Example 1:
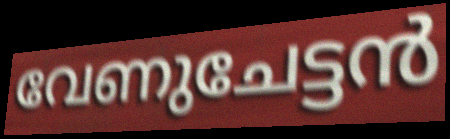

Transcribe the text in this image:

വേണുചേട്ടൻ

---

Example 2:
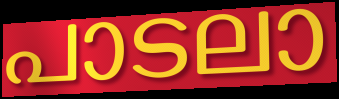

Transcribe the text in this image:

പാടലാ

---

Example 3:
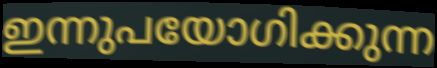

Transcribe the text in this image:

ഇന്നുപയോഗിക്കുന്ന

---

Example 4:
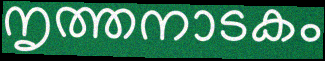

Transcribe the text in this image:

നൃത്തനാടകം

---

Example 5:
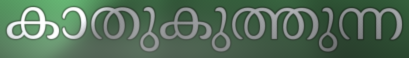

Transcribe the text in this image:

കാതുകുത്തുന്ന